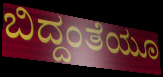
ಬಿದ್ದಂತೆಯೂ